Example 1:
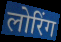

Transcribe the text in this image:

लोरिंग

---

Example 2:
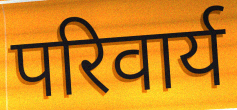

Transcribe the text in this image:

परिवार्य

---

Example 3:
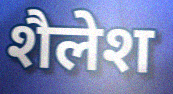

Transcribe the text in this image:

शैलेश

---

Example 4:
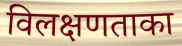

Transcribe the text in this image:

विलक्षणताका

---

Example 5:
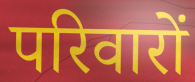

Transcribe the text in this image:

परिवारों